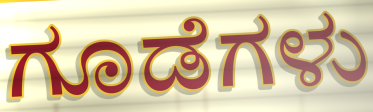
ಗೂಡೆಗಳು